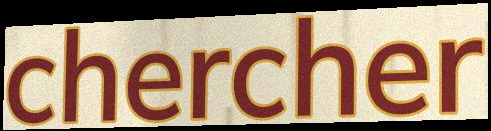
chercher